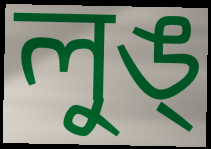
লুঙ্